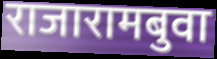
राजारामबुवा